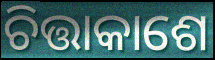
ଚିତ୍ତାକାଶେ